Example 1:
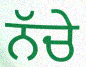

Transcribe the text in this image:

ਨੱਚੇ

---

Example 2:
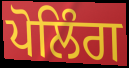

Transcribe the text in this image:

ਪੋਲਿੰਗ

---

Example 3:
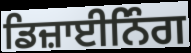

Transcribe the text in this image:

ਡਿਜ਼ਾਈਨਿੰਗ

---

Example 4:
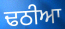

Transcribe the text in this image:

ਢਠੀਆ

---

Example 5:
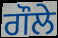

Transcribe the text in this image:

ਗੌਲੇ